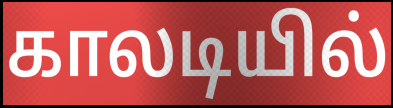
காலடியில்